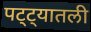
पट्ट्यातली